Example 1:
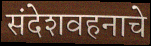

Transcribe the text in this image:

संदेशवहनाचे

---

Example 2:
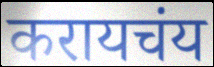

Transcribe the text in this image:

करायचंय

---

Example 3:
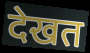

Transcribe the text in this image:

देखत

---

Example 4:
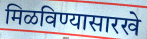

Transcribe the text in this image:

मिळविण्यासारखे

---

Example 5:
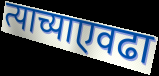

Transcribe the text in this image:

त्याच्याएवढा